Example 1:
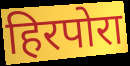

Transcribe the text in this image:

हिरपोरा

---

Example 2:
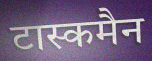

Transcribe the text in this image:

टास्कमैन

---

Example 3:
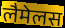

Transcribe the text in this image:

लैमेलस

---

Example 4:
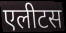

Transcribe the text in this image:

एलीटस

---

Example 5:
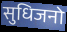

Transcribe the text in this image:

सुधिजनो